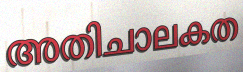
അതിചാലകത